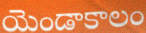
యెండాకాలం